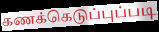
கணக்கெடுப்புப்படி